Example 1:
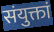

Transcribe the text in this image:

संयुक्तां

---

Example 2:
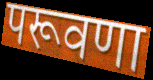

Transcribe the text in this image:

परूवणा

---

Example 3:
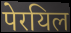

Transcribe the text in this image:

पेरयिल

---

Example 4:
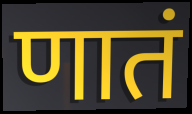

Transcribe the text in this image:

णातं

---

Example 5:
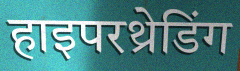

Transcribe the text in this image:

हाइपरथ्रेडिंग